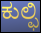
ಕುಲ್ಫಿ